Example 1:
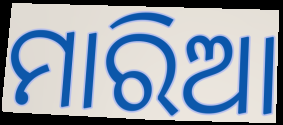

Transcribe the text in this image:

ମାରିଆ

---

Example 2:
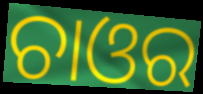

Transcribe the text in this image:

ଚାଓର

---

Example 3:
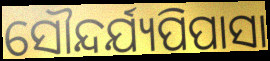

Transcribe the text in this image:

ସୌନ୍ଦର୍ଯ୍ୟପିପାସା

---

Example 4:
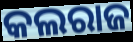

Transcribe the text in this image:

କଲରାଜ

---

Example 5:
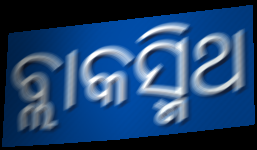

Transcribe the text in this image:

ବ୍ଲାକସ୍ମିଥ